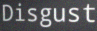
Disgust